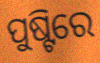
ପୁଷ୍ଟିରେ